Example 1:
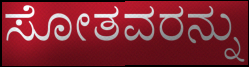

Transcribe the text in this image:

ಸೋತವರನ್ನು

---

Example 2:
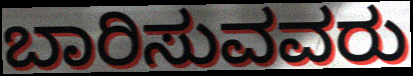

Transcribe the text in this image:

ಬಾರಿಸುವವರು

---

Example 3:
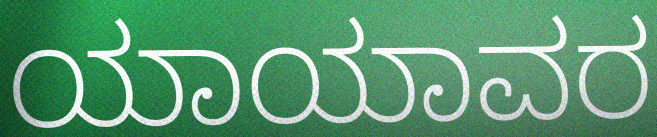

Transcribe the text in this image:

ಯಾಯಾವರ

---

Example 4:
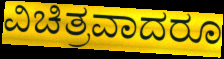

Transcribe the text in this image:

ವಿಚಿತ್ರವಾದರೂ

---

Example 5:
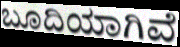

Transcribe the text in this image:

ಬೂದಿಯಾಗಿವೆ